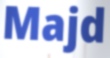
Majd